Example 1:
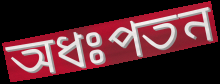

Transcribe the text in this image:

অধঃপতন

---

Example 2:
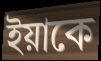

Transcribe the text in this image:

ইয়াকে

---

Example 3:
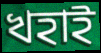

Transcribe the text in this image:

খহাই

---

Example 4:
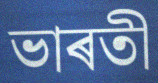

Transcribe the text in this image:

ভাৰতী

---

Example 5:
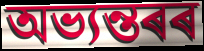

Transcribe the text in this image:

অভ্যন্তৰৰ